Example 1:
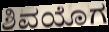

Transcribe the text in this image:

ಶಿವಯೊಗ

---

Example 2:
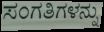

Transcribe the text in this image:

ಸಂಗತಿಗಳನ್ನು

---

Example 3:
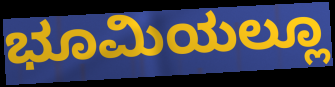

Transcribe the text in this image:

ಭೂಮಿಯಲ್ಲೂ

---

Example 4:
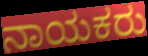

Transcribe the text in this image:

ನಾಯಕರು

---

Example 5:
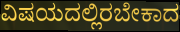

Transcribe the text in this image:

ವಿಷಯದಲ್ಲಿರಬೇಕಾದ